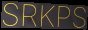
SRKPS